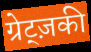
ग्रेट्ज़की